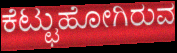
ಕೆಟ್ಟುಹೋಗಿರುವ